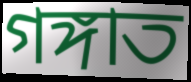
গঙ্গাত